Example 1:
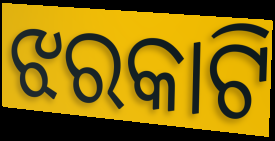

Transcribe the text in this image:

ଝରକାଟି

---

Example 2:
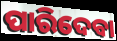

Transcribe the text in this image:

ପାରିଦେବା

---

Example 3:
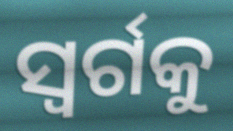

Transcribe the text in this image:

ସ୍ୱର୍ଗକୁ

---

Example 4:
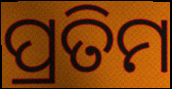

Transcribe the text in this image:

ପ୍ରତିମ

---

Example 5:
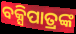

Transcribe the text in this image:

ବକ୍ସିପାତ୍ରଙ୍କ